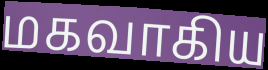
மகவாகிய